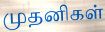
முதனிகள்